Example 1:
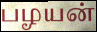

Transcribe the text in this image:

பழயன்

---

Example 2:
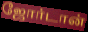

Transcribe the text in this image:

ஜோர்டான்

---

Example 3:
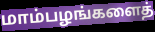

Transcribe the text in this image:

மாம்பழங்களைத்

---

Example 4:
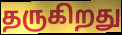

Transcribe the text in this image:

தருகிறது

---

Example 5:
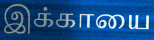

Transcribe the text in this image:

இக்காயை